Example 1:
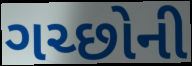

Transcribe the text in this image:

ગચ્છોની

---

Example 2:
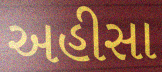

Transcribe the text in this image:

અહીસા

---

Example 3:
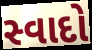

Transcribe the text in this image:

સ્વાદો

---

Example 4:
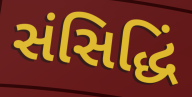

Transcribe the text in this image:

સંસિદ્ધિં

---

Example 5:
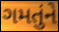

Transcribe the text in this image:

ગમતુંને